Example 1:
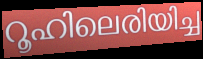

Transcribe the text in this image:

റൂഹിലെരിയിച്ച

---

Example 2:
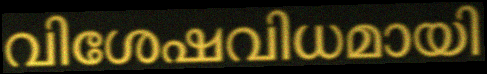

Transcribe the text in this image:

വിശേഷവിധമായി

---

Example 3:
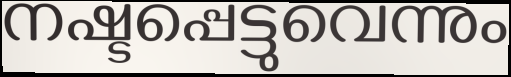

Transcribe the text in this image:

നഷ്ടപ്പെട്ടുവെന്നും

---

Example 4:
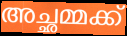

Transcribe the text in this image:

അച്ഛമ്മക്ക്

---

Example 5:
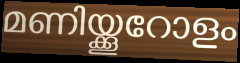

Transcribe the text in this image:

മണിയ്ക്കൂറോളം